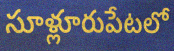
సూళ్లూరుపేటలో